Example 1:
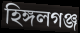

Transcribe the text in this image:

হিঙ্গলগঞ্জ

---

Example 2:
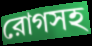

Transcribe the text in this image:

রোগসহ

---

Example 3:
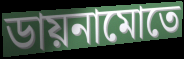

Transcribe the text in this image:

ডায়নামোতে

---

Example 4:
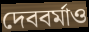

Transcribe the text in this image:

দেববর্মাও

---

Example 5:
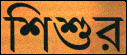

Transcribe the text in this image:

শিশুর